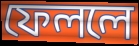
ফেললে